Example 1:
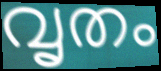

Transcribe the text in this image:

വൃതം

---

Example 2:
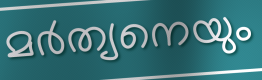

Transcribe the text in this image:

മർത്യനെയും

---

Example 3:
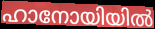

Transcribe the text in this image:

ഹാനോയിയിൽ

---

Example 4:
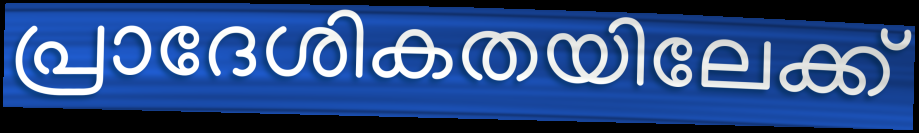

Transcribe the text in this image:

പ്രാദേശികതയിലേക്ക്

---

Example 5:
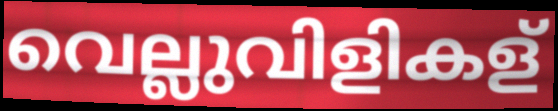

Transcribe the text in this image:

വെല്ലുവിളികള്